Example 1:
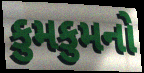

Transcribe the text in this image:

કુમકુમનો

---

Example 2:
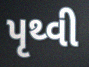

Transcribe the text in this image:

પૃથ્વી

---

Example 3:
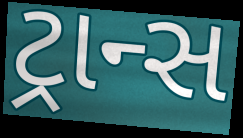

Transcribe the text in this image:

ટ્રાન્સ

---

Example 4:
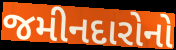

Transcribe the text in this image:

જમીનદારોનો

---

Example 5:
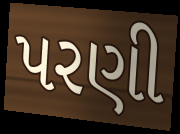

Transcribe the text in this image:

પરણી